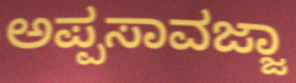
ಅಪ್ಪಸಾವಜ್ಜಾ